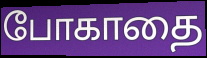
போகாதை